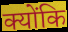
क्योंकि